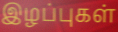
இழப்புகள்